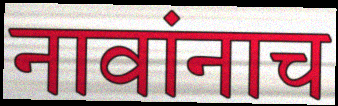
नावांनाच